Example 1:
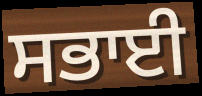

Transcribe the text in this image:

ਸਭਾਈ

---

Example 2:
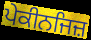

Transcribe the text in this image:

ਪੇਕੀਨਜਿਜ਼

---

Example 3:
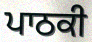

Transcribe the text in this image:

ਪਾਠਕੀ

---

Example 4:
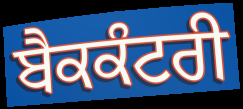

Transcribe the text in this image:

ਬੈਕਕੰਟਰੀ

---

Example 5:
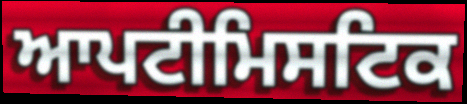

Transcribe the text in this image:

ਆਪਟੀਮਿਸਟਿਕ